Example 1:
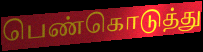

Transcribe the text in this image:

பெண்கொடுத்து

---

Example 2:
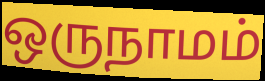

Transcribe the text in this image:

ஒருநாமம்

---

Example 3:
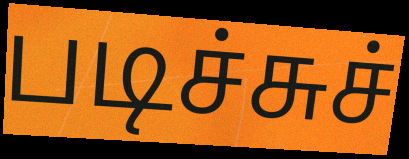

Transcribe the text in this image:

படிச்சுச்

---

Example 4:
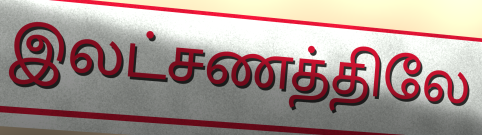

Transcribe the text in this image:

இலட்சணத்திலே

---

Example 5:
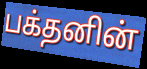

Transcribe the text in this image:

பக்தனின்